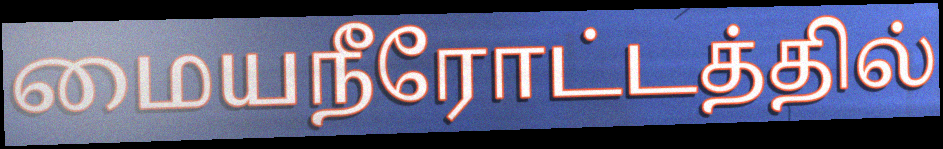
மையநீரோட்டத்தில்